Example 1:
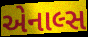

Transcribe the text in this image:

એનાલ્સ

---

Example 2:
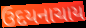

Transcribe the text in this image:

ઉદયનાચાય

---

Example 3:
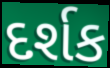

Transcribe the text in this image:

દર્શક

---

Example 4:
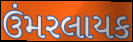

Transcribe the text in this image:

ઉંમરલાયક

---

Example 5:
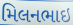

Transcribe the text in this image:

મિલનભાઇ